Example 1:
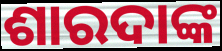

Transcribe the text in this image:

ଶାରଦାଙ୍କ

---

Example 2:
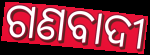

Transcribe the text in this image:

ଗଣବାଦୀ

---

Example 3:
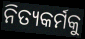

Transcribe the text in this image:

ନିତ୍ୟକର୍ମକୁ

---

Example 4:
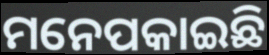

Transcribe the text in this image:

ମନେପକାଇଛି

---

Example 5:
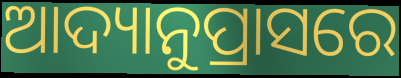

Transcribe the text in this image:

ଆଦ୍ୟାନୁପ୍ରାସରେ